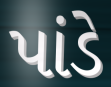
પાંડે